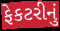
ફેકટરીનું